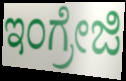
ಇಂಗ್ರೇಜಿ